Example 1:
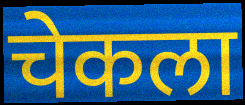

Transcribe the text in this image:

चेकला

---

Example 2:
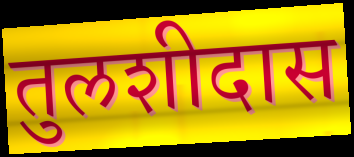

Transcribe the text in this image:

तुलशीदास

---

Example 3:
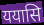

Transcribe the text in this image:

ययासि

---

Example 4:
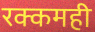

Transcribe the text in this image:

रक्कमही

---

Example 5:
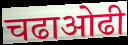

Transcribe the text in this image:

चढाओढी